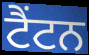
ਟੈਂਟਨ